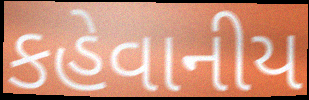
કહેવાનીય